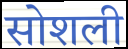
सोशली